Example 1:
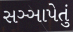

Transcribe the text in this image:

સઞ્ઞાપેતું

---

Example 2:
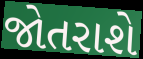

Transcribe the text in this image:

જોતરાશે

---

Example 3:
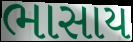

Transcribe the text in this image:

ભાસાય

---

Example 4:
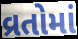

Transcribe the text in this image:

વ્રતોમાં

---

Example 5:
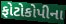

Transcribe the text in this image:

ફોટોકોપીના